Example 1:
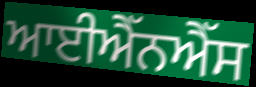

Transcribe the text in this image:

ਆਈਐੱਨਐੱਸ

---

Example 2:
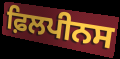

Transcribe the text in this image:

ਫ਼ਿਲਪੀਨਸ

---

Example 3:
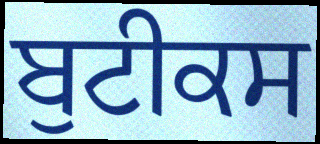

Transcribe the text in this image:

ਬੁਟੀਕਸ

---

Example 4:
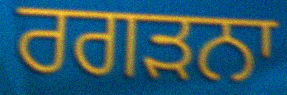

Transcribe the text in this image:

ਰਗੜਨਾ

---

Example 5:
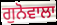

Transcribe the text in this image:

ਗੁਨੋਵਾਲਾ